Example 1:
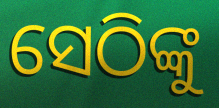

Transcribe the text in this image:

ସେଠିଙ୍କୁ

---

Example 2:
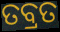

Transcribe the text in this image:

ତବ୍ରତ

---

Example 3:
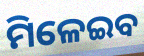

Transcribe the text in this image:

ମିଳେଇବ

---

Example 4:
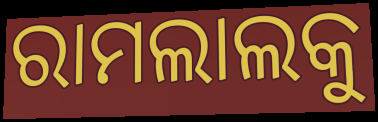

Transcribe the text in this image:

ରାମଲାଲକୁ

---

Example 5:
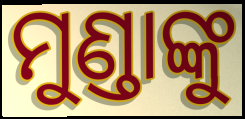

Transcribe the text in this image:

ମୁଣ୍ଡାଙ୍କୁ